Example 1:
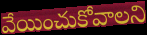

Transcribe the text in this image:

వేయించుకోవాలని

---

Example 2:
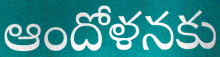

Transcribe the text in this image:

ఆందోళనకు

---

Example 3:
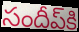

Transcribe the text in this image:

సందీప్‌కి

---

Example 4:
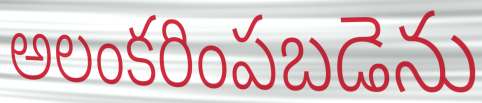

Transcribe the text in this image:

అలంకరింపబడెను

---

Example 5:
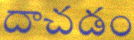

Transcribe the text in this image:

దాచడం